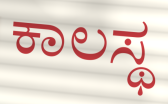
ಕಾಲಸ್ಥ